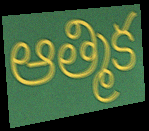
ఆత్మిక